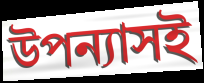
উপন্যাসই